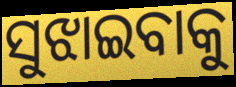
ସୁଝାଇବାକୁ